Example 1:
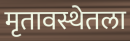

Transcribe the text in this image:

मृतावस्थेतला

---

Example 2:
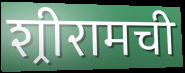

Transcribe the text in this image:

श्रीरामची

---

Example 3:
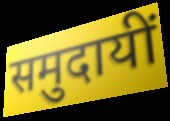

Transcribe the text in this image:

समुदायीं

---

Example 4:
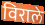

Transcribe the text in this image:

विराले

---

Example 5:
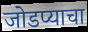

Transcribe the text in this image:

जोडप्याचा